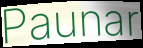
Paunar